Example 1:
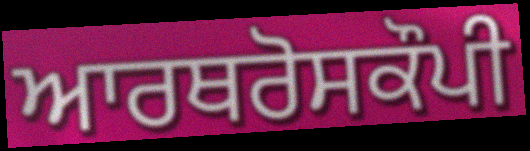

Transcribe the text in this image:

ਆਰਥਰੋਸਕੌਪੀ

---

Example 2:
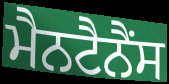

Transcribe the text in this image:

ਮੈਨਟੈਨੈਂਸ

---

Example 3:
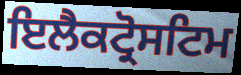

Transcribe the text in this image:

ਇਲੈਕਟ੍ਰੋਸਟਿਮ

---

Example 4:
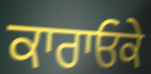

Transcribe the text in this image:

ਕਾਰਾਓਕੇ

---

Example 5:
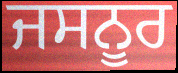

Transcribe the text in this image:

ਜਸਨੂਰ